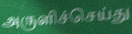
அருளிச்செய்து